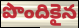
పొందికైన